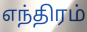
எந்திரம்